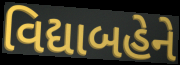
વિદ્યાબહેને